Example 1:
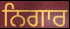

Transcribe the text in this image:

ਨਿਗਾਰ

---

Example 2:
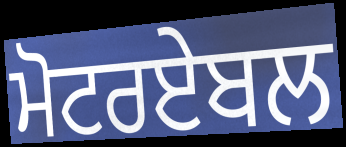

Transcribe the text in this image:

ਮੋਟਰਏਬਲ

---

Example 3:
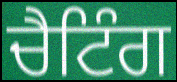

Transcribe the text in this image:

ਚੈਟਿੰਗ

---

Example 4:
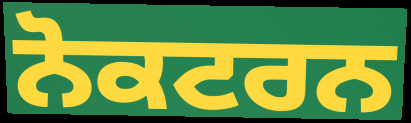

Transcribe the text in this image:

ਨੋਕਟਰਨ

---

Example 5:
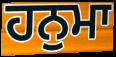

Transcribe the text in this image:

ਹਨੁਮਾ